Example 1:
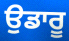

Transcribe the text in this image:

ਉਡਾਰੂ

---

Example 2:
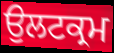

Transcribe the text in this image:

ਉਲਟਕ੍ਰਮ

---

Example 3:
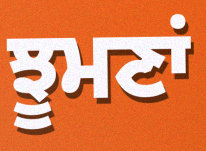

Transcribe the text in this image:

ਝੂਮਣਾਂ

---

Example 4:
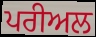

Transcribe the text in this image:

ਪਰੀਅਲ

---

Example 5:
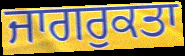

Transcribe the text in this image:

ਜਾਗਰੁਕਤਾ